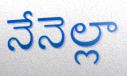
నేనెల్లా